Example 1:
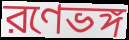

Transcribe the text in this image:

রণেভঙ্গ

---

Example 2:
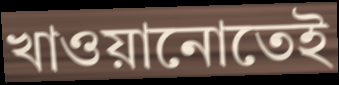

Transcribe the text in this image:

খাওয়ানোতেই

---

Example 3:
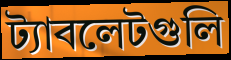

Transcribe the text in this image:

ট্যাবলেটগুলি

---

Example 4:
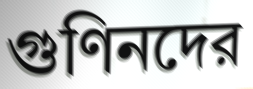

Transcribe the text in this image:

গুণিনদের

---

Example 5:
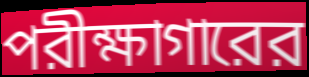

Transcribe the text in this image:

পরীক্ষাগারের